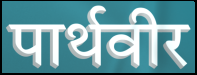
पार्थवीर